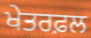
ਖੇਤਰਫ਼ਲ